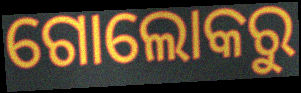
ଗୋଲୋକରୁ